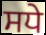
ਸਧੇ